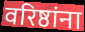
वरिष्ठांना